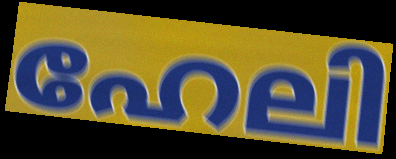
ഹേലി